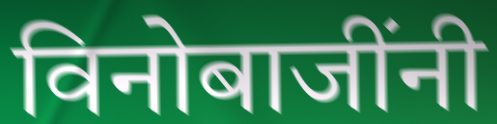
विनोबाजींनी